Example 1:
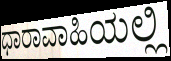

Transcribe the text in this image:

ಧಾರಾವಾಹಿಯಲ್ಲಿ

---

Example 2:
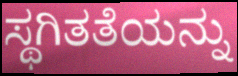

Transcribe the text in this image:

ಸ್ಥಗಿತತೆಯನ್ನು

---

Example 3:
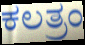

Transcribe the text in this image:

ಕಲತ್ರಂ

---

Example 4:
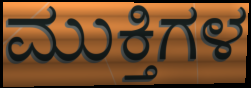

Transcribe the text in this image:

ಮುಕ್ತಿಗಳ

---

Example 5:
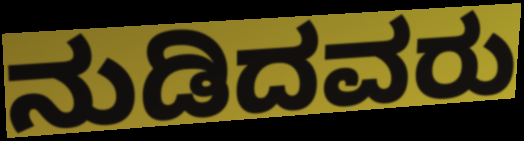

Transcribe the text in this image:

ನುಡಿದವರು